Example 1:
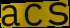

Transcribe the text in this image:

acs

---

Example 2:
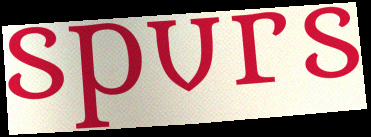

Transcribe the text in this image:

spurs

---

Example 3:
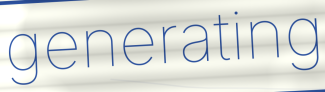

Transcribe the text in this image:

generating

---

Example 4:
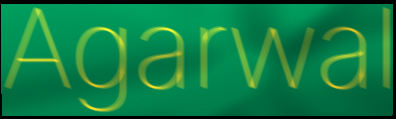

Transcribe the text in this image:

Agarwal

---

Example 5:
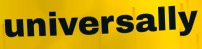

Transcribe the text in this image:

universally